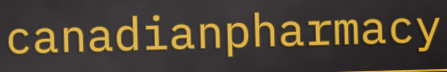
canadianpharmacy